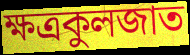
ক্ষত্রকুলজাত